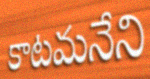
కాటమనేని